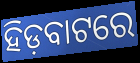
ହିଡ଼ବାଟରେ